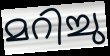
മറിച്ചു